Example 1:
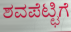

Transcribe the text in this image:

ಶವಪೆಟ್ಟಿಗೆ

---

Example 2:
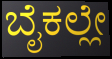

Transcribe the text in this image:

ಬೈಕಲ್ಲೇ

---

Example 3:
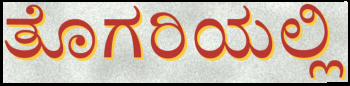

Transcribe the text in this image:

ತೊಗರಿಯಲ್ಲಿ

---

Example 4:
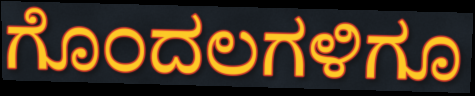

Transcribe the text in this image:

ಗೊಂದಲಗಳಿಗೂ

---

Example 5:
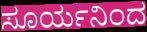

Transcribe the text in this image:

ಸೂರ್ಯನಿಂದ